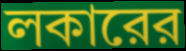
লকারের